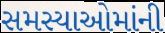
સમસ્યાઓમાંની